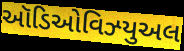
ઑડિઓવિઝ્યુઅલ